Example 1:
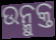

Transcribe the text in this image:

ଉନ୍ମୁକ୍ତ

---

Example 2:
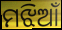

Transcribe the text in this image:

ମଝିଆଁ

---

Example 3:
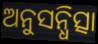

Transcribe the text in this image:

ଅନୁସନ୍ଧିତ୍ସା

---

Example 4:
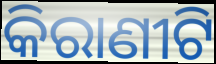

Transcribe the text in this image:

କିରାଣୀଟି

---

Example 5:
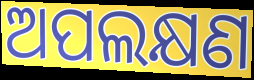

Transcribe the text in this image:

ଅପଲକ୍ଷଣ